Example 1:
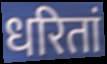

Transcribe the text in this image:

धरितां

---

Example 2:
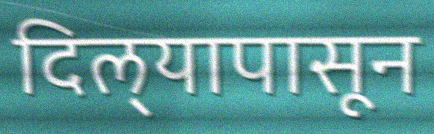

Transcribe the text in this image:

दिल्यापासून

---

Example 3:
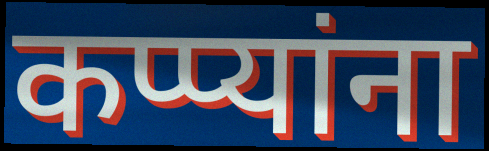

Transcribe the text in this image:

कप्प्यांना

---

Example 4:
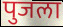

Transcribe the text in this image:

पुजला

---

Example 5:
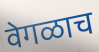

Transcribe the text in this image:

वेगळाच